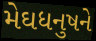
મેઘધનુષને